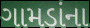
ગામડાંના